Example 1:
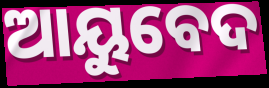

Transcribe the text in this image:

ଆୟୁବେଦ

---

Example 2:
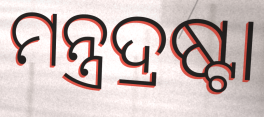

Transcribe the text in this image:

ମନ୍ତ୍ରଦ୍ରଷ୍ଟା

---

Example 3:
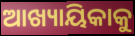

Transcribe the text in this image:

ଆଖ୍ୟାୟିକାକୁ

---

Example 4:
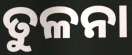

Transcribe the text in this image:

ତୁଳନା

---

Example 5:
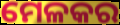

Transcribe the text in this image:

ମେଳକର